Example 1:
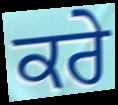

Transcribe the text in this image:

ਕਰੇ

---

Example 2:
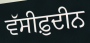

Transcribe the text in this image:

ਵੱਸੀਫ਼ੁਦੀਨ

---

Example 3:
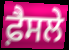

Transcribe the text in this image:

ਫ਼ੈਸਲੇ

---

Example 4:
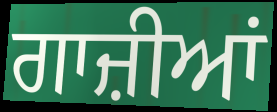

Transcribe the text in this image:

ਗਾਜ਼ੀਆਂ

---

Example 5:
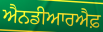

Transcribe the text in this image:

ਐਨਡੀਆਰਐਫ਼